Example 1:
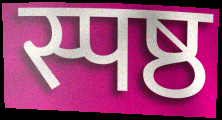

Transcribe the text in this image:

स्पष्ठ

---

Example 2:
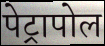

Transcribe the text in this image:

पेट्रापोल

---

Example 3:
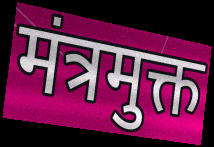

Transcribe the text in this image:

मंत्रमुक्त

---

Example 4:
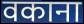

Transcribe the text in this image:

वकाना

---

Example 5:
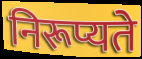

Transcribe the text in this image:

निरूप्यते